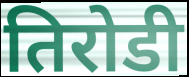
तिरोडी